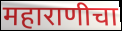
महाराणीचा